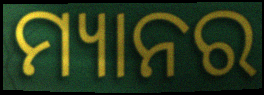
ମ୍ୟାନର